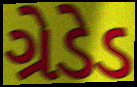
ગ્રેડેડ